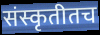
संस्कृतीतच